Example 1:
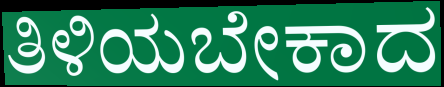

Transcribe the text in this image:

ತಿಳಿಯಬೇಕಾದ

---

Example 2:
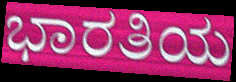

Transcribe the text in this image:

ಭಾರತಿಯ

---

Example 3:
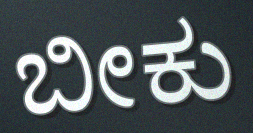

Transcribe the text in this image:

ಬೀಕು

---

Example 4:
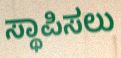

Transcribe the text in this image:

ಸ್ಥಾಪಿಸಲು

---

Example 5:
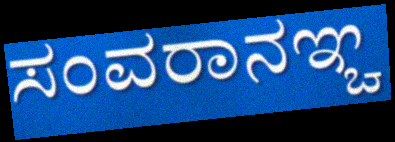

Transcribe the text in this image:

ಸಂವರಾನಞ್ಚ